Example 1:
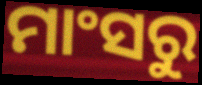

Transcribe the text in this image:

ମାଂସରୁ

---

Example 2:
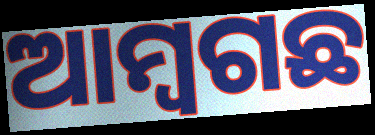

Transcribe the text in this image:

ଆମ୍ବଗଛ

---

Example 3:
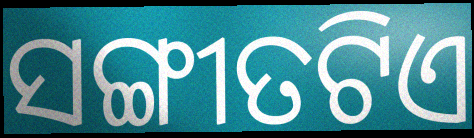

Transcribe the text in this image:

ସଙ୍ଗୀତଟିଏ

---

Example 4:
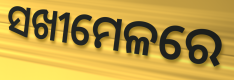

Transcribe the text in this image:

ସଖୀମେଳରେ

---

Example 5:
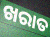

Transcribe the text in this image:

ଖରାତ